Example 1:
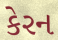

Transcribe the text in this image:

કેરન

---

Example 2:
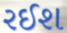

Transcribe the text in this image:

રઈશ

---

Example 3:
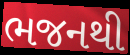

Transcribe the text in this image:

ભજનથી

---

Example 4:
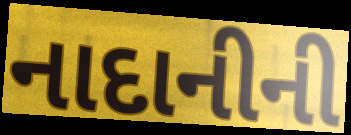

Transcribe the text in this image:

નાદાનીની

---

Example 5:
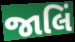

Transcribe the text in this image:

જાલિં